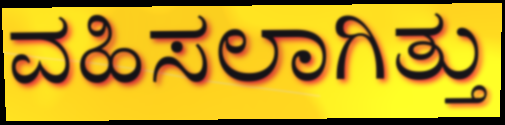
ವಹಿಸಲಾಗಿತ್ತು